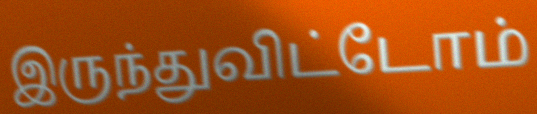
இருந்துவிட்டோம்